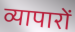
व्यापारों